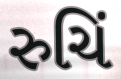
રુચિં